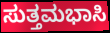
ಸುತ್ತಮಭಾಸಿ